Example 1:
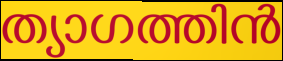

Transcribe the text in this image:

ത്യാഗത്തിൻ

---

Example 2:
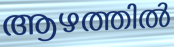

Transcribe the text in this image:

ആഴത്തിൽ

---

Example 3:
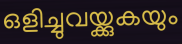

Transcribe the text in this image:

ഒളിച്ചുവയ്ക്കുകയും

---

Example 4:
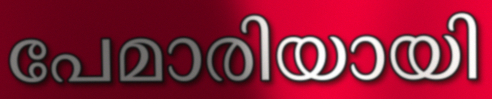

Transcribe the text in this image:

പേമാരിയായി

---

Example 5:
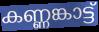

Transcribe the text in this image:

കണ്ണങ്കാട്ട്